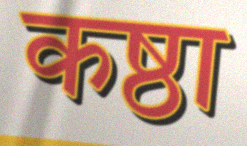
कष्ठा